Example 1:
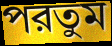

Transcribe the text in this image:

পরতুম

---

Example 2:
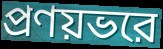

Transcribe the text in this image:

প্রণয়ভরে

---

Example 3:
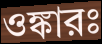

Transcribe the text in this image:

ওঙ্কারঃ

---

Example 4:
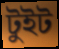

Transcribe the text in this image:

টুইট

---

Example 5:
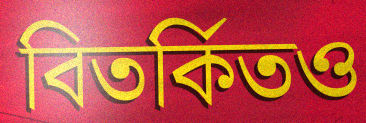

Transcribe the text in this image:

বিতর্কিতও